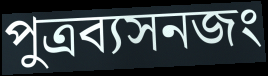
পুত্রব্যসনজং